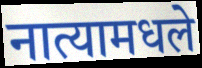
नात्यामधले